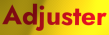
Adjuster